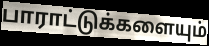
பாராட்டுக்களையும்